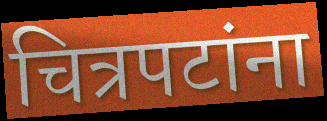
चित्रपटांना